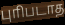
புரிபடாத